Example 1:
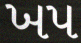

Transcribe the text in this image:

ખપ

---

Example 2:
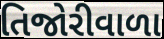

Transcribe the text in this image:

તિજોરીવાળા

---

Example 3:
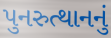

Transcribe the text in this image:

પુનરુત્થાનનું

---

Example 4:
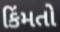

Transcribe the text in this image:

કિંમતો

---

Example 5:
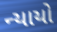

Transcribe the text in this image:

ન્યાયો